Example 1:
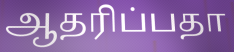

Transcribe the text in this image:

ஆதரிப்பதா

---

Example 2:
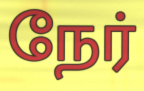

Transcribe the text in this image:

நேர்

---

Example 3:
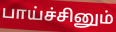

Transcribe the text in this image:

பாய்ச்சினும்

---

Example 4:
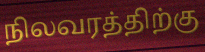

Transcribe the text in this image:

நிலவரத்திற்கு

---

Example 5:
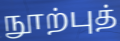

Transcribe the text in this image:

நூற்புத்